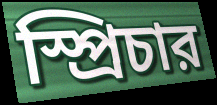
স্প্রিচার